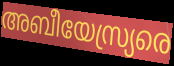
അബീയേസ്ര്യരെ